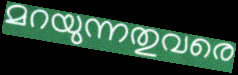
മറയുന്നതുവരെ